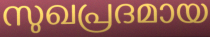
സുഖപ്രദമായ